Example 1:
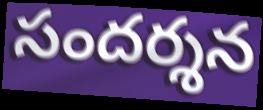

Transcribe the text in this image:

సందర్శన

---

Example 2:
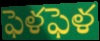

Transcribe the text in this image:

ఫెళఫెళ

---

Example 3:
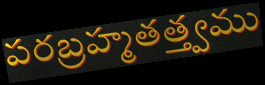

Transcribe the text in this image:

పరబ్రహ్మతత్త్వము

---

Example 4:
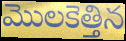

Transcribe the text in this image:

మొలకెత్తిన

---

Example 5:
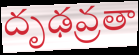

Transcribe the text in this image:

దృఢవ్రతా